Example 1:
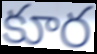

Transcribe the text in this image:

కూర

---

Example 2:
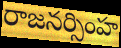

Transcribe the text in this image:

రాజనర్సింహ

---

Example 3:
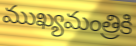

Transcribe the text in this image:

ముఖ్యమంత్రికి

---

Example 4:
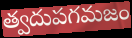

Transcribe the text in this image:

త్వదుపగమజం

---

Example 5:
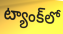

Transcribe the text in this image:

ట్యాంక్‌లో